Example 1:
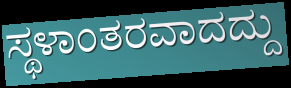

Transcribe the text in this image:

ಸ್ಥಳಾಂತರವಾದದ್ದು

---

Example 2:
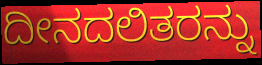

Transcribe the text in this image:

ದೀನದಲಿತರನ್ನು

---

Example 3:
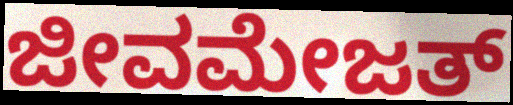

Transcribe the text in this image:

ಜೀವಮೇಜತ್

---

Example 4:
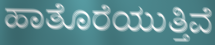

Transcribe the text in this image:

ಹಾತೊರೆಯುತ್ತಿವೆ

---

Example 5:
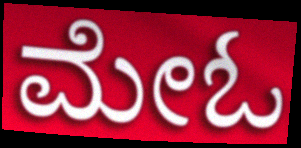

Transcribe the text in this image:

ಮೇಓ